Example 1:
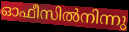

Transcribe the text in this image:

ഓഫീസിൽനിന്നു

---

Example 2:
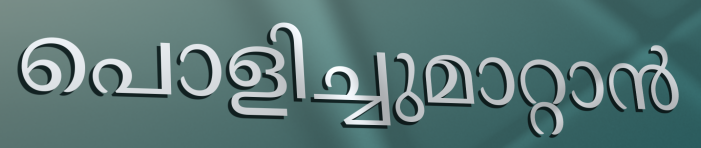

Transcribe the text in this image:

പൊളിച്ചുമാറ്റാൻ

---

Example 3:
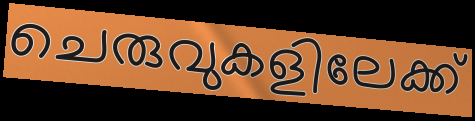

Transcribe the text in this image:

ചെരുവുകളിലേക്ക്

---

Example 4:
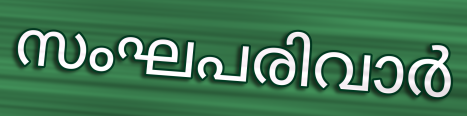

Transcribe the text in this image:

സംഘപരിവാർ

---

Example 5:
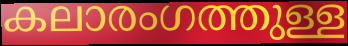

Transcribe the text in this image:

കലാരംഗത്തുള്ള